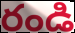
రండి